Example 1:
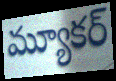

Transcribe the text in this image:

మ్యూకర్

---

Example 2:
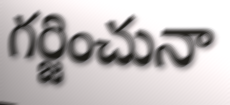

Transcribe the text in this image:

గర్జించునా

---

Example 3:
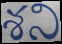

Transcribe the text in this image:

శని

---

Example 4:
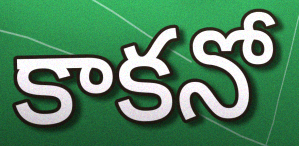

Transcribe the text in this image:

కాకనో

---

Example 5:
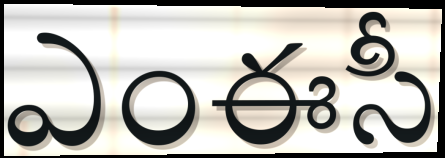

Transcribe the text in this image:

ఎంఈసీ